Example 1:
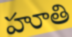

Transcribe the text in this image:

హూతి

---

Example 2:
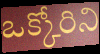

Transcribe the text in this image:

ఒక్కోరిని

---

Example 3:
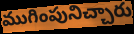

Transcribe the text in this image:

ముగింపునిచ్చారు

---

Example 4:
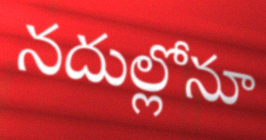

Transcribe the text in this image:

నదుల్లోనూ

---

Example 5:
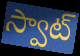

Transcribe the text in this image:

స్వాట్